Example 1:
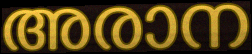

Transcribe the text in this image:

അരാന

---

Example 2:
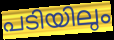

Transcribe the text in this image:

പടിയിലും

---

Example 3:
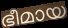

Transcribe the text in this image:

ഭീമായ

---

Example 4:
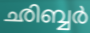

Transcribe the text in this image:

ഛിബ്ബർ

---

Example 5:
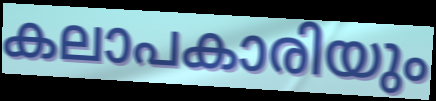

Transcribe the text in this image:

കലാപകാരിയും